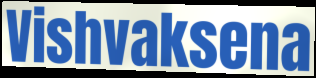
Vishvaksena